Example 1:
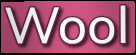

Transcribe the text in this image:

Wool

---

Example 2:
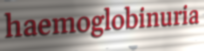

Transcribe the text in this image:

haemoglobinuria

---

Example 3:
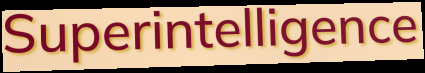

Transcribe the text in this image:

Superintelligence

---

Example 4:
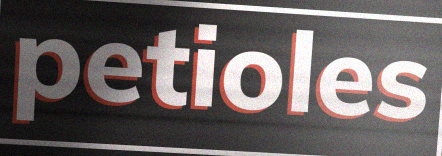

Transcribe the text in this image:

petioles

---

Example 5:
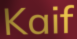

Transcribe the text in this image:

Kaif